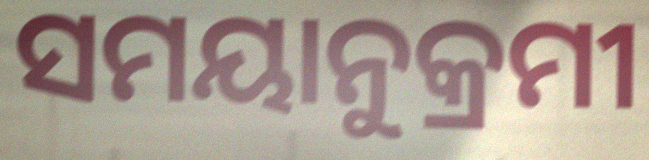
ସମୟାନୁକ୍ରମୀ